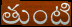
తుంటి